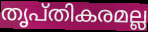
തൃപ്തികരമല്ല